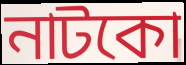
নাটকো